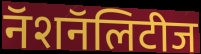
नॅशनॅलिटीज